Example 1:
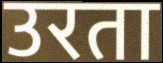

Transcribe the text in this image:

उरता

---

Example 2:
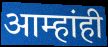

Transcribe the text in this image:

आम्हांही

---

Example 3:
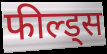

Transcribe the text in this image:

फील्ड्स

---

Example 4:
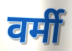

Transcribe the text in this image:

वर्मी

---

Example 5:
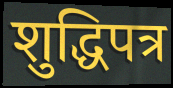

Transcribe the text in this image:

शुद्धिपत्र